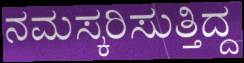
ನಮಸ್ಕರಿಸುತ್ತಿದ್ದ